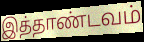
இத்தாண்டவம்